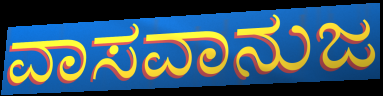
ವಾಸವಾನುಜ